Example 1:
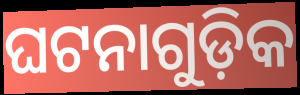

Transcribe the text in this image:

ଘଟନାଗୁଡ଼ିକ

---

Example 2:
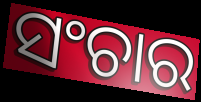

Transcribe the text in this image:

ସଂଚାର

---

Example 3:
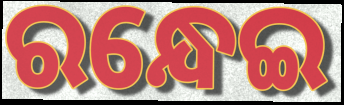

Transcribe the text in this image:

ରନ୍ଧେଇ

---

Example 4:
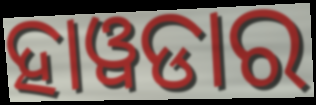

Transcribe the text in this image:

ହାୱଡାର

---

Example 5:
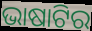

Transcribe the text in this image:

ଭାଷାଟିର